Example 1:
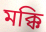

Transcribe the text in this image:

মক্কি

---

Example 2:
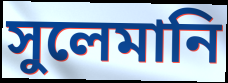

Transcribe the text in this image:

সুলেমানি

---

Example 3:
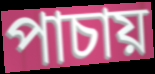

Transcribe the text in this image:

পাচায়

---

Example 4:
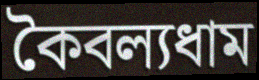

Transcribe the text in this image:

কৈবল্যধাম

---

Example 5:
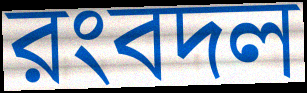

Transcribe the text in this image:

রংবদল